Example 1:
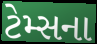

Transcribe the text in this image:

ટેમ્સના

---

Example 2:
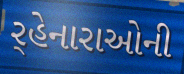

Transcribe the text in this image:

ર્‌હેનારાઓની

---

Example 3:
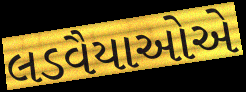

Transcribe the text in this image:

લડવૈયાઓએ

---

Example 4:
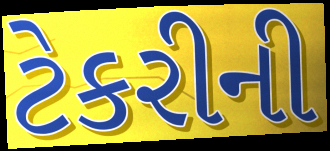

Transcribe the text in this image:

ટેકરીની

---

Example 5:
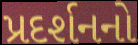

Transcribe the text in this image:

પ્રદર્શનનો